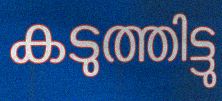
കടുത്തിട്ടു